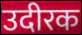
उदीरक